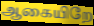
ஆகையிறே